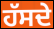
ਹੱਸਦੇ